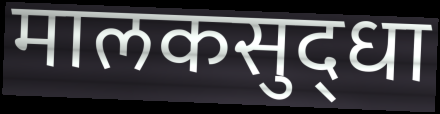
मालकसुद्धा